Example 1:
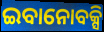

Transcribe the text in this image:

ଇବାନୋବକ୍ସି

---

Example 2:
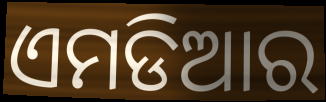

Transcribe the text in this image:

ଏମଡିଆର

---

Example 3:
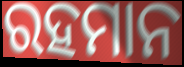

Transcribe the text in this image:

ରହମାନ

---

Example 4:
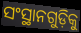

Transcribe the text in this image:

ସଂସ୍ଥାନଗୁଡ଼ିକୁ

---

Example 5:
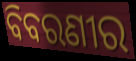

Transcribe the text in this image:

ବିବରଣୀର